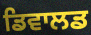
ਡਿਵਾਲਡ